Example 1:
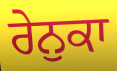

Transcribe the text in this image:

ਰੇਨੁਕਾ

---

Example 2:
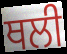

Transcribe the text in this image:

ਥਲੀ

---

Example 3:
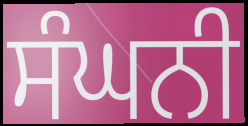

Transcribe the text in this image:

ਸੰਘਨੀ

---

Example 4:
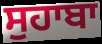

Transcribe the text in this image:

ਸੁਹਾਬਾ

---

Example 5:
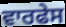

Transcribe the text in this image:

ਵਾਰਫੇਸ